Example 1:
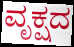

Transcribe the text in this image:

ವೃಕ್ಷದ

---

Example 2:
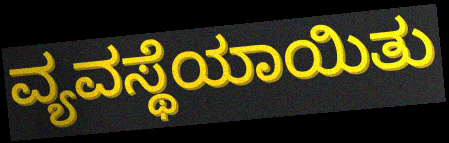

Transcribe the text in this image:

ವ್ಯವಸ್ಥೆಯಾಯಿತು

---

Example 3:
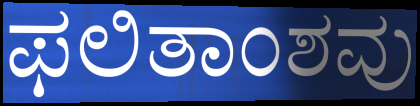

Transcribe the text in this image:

ಫಲಿತಾಂಶವು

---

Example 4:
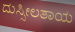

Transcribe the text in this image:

ದುಸ್ಸೀಲತಾಯ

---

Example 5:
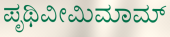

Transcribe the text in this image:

ಪೃಥಿವೀಮಿಮಾಮ್